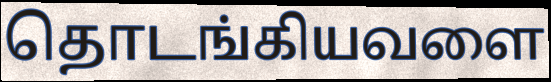
தொடங்கியவளை